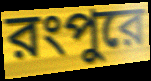
রংপুরে